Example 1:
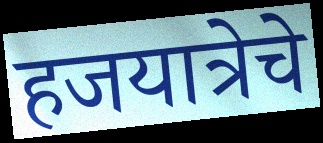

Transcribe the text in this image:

हजयात्रेचे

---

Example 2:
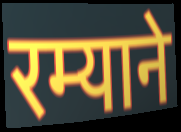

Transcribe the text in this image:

रम्याने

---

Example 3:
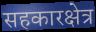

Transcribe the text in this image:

सहकारक्षेत्र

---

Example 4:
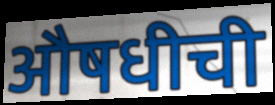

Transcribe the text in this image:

औषधीची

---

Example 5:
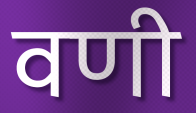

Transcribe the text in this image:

वणी